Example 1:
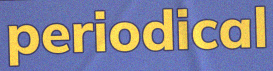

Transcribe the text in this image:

periodical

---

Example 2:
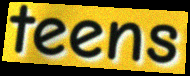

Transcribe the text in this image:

teens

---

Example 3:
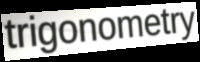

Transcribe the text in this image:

trigonometry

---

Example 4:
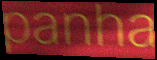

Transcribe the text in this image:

panha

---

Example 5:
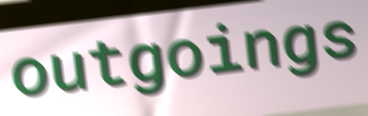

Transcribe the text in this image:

outgoings